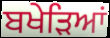
ਬਖੇੜਿਆਂ